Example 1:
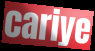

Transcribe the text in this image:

cariye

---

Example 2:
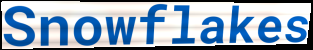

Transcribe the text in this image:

Snowflakes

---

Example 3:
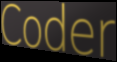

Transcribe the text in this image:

Coder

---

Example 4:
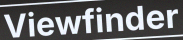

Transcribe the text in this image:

Viewfinder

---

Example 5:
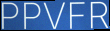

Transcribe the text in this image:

PPVFR